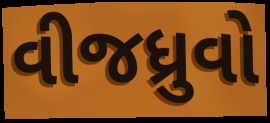
વીજધ્રુવો